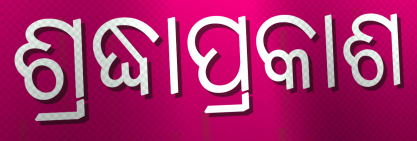
ଶ୍ରଦ୍ଧାପ୍ରକାଶ